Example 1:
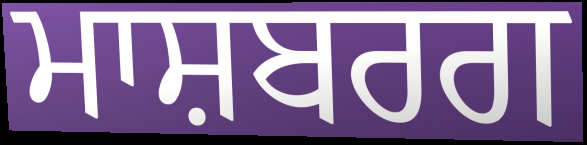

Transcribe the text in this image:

ਮਾਸ਼ਬਰਗ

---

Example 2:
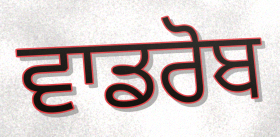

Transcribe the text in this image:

ਵਾਡਰੋਬ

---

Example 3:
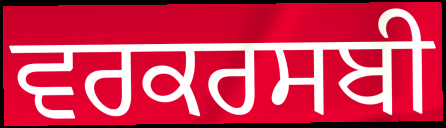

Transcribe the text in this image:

ਵਰਕਰਸਬੀ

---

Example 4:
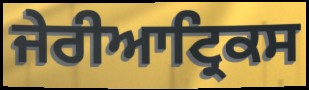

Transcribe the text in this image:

ਜੇਰੀਆਟ੍ਰਿਕਸ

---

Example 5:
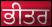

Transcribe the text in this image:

ਭੀਤਰ